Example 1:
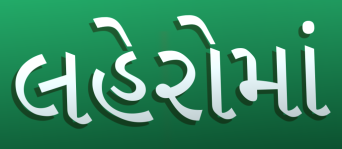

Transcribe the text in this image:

લહેરોમાં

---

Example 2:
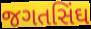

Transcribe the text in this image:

જગતસિંઘ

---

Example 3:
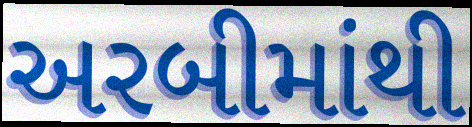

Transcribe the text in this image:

અરબીમાંથી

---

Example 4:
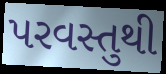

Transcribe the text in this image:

પરવસ્તુથી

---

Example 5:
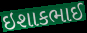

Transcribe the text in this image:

ઇશાકભાઈ